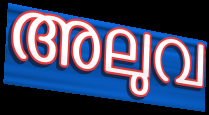
അലുവ